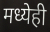
मध्येही